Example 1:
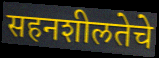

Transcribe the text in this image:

सहनशीलतेचे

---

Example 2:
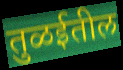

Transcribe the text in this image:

तुळईतील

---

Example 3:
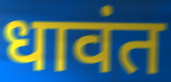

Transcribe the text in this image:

धावंत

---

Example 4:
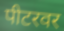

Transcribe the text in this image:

पीटरवर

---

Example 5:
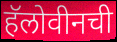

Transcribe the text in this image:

हॅलोवीनची